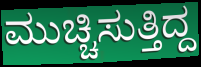
ಮುಚ್ಚಿಸುತ್ತಿದ್ದ